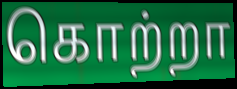
கொற்றா